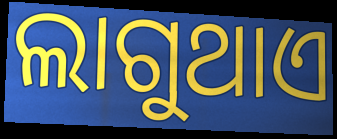
ଲାଗୁଥାଏ